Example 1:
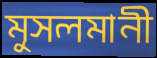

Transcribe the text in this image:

মুসলমানী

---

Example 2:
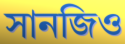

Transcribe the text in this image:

সানজিও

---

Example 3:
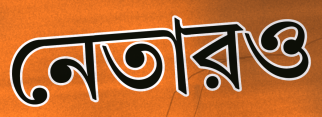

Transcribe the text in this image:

নেতারও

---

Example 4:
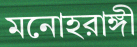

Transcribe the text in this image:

মনোহরাঙ্গী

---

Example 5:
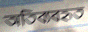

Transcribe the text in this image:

অতিব্যবহৃত